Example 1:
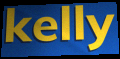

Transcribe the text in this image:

kelly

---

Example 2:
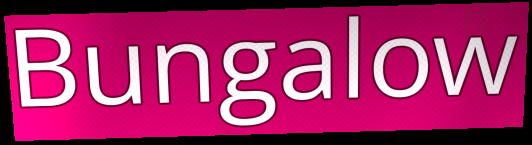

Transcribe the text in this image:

Bungalow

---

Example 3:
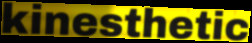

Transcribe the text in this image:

kinesthetic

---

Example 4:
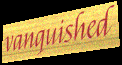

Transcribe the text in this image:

vanquished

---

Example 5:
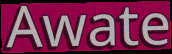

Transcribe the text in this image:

Awate